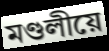
মণ্ডলীয়ে